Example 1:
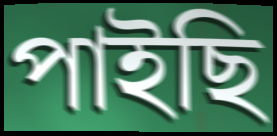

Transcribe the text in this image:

পাইছি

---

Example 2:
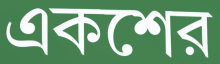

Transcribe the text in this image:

একশের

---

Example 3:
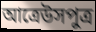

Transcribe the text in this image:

আত্রেউসপুত্র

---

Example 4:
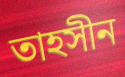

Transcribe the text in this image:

তাহসীন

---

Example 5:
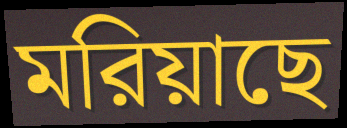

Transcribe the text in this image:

মরিয়াছে